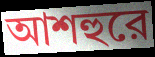
আশহুরে